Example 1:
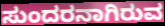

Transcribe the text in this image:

ಸುಂದರನಾಗಿರುವ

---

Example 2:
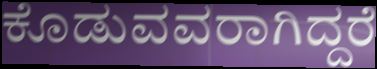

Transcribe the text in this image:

ಕೊಡುವವರಾಗಿದ್ದರೆ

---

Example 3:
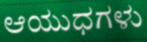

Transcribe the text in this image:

ಆಯುಧಗಳು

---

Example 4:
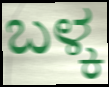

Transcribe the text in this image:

ಬಳ್ಕ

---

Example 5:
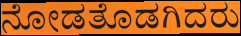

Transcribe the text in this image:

ನೋಡತೊಡಗಿದರು